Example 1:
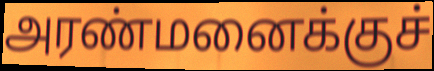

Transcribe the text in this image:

அரண்மனைக்குச்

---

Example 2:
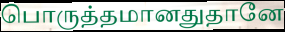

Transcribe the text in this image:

பொருத்தமானதுதானே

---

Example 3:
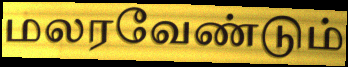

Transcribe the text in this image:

மலரவேண்டும்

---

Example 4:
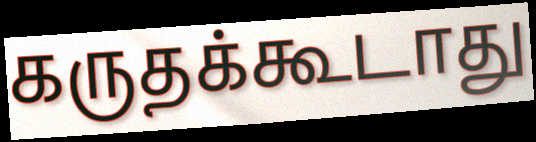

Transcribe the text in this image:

கருதக்கூடாது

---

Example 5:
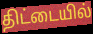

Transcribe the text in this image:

திட்டையில்